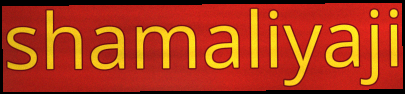
shamaliyaji